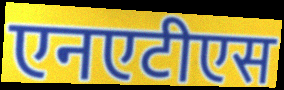
एनएटीएस